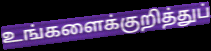
உங்களைக்குறித்துப்